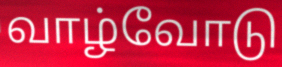
வாழ்வோடு